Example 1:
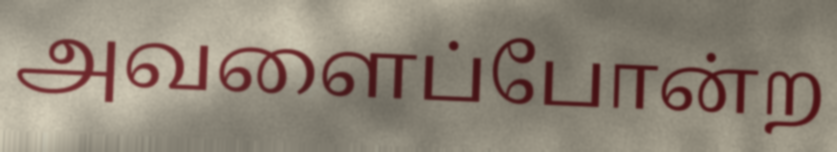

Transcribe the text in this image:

அவளைப்போன்ற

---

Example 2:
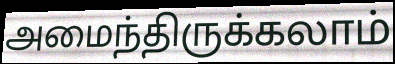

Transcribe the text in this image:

அமைந்திருக்கலாம்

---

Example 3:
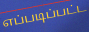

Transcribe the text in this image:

எப்படிப்பட்ட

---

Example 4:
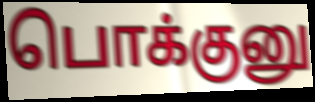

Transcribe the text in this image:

பொக்குனு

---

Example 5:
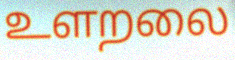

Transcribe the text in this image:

உளறலை